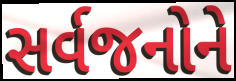
સર્વજનોને